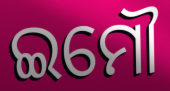
ଇମୌ